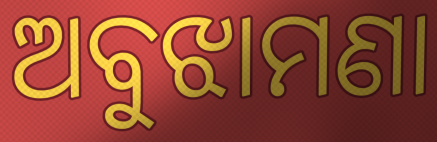
ଅବୁଝାମଣା